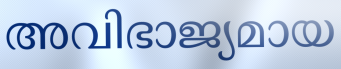
അവിഭാജ്യമായ